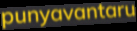
punyavantaru